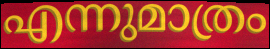
എന്നുമാത്രം